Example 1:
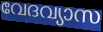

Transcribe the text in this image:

വേദവ്യാസ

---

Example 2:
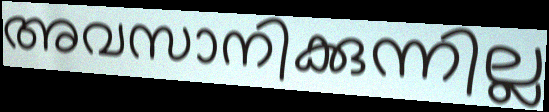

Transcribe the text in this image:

അവസാനിക്കുന്നില്ല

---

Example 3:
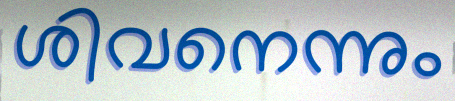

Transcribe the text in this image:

ശിവനെന്നും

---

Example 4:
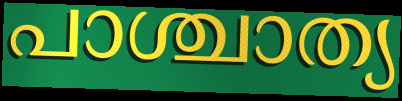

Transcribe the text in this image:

പാശ്ചാത്യ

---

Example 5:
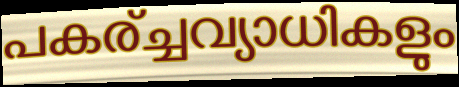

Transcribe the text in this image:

പകര്ച്ചവ്യാധികളും